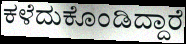
ಕಳೆದುಕೊಂಡಿದ್ದಾರೆ